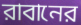
রাবানের